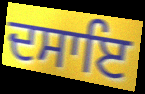
ਦਸਾਇ